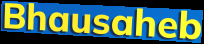
Bhausaheb